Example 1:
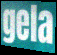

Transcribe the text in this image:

gela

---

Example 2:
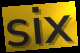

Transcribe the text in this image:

six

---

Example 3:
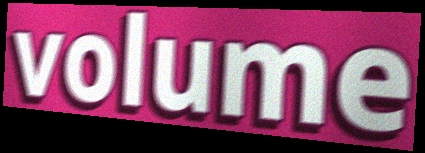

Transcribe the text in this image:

volume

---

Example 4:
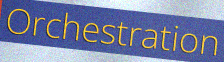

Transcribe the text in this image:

Orchestration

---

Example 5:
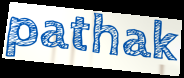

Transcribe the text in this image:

pathak